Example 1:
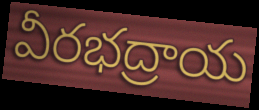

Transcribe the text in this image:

వీరభద్రాయ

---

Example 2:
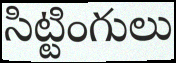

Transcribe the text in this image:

సిట్టింగులు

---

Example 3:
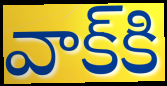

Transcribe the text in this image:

వాక్‌కి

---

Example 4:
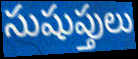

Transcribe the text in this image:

సుషుప్తులు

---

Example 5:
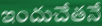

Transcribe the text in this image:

ఇందుచేతనే